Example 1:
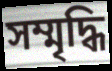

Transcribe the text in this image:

সম্মৃদ্ধি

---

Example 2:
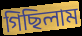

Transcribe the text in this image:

গিছিলাম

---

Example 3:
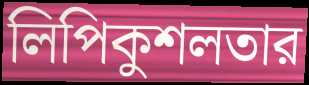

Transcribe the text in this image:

লিপিকুশলতার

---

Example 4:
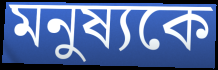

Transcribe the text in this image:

মনুষ্যকে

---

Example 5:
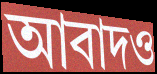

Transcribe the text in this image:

আবাদও